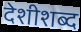
देशीशब्द